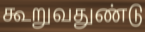
கூறுவதுண்டு